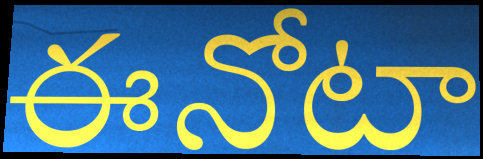
ఈనోటా